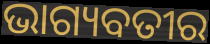
ଭାଗ୍ୟବତୀର